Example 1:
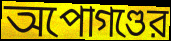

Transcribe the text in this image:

অপোগণ্ডের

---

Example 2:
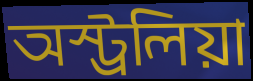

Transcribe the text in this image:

অস্ট্রলিয়া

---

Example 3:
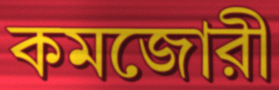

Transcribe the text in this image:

কমজোরী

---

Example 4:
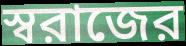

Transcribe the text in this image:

স্বরাজের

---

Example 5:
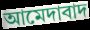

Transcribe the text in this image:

আমেদাবাদ